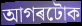
আগৰটোক